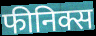
फीनिक्स